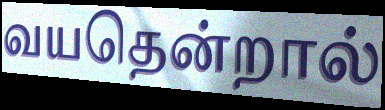
வயதென்றால்